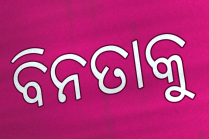
ବିନତାକୁ